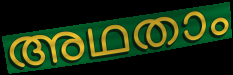
അഥതാം